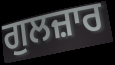
ਗੁਲਜ਼ਾਰ